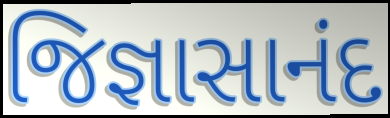
જિજ્ઞાસાનંદ